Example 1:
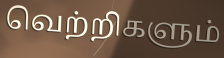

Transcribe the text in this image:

வெற்றிகளும்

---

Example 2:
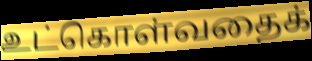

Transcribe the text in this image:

உட்கொள்வதைக்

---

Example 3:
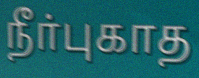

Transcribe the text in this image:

நீர்புகாத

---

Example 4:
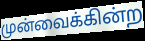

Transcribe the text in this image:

முன்வைக்கின்ற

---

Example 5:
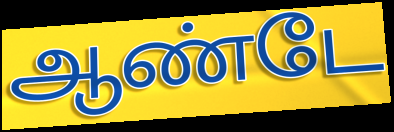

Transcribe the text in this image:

ஆண்டே